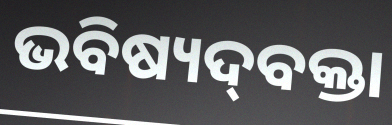
ଭବିଷ୍ୟଦ୍‌ବକ୍ତା